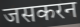
जसकरन